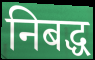
निबद्ध